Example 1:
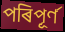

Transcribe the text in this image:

পৰিপূৰ্ণ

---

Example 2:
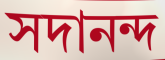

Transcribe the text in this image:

সদানন্দ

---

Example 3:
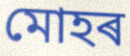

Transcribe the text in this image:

মোহৰ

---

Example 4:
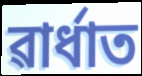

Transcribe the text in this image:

ৱাৰ্ধাত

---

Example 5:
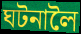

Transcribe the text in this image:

ঘটনালৈ